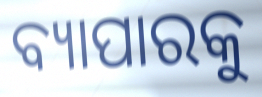
ବ୍ୟାପାରକୁ